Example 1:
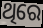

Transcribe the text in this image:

ଥିରେ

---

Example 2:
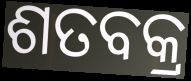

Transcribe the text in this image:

ଶତବକ୍ର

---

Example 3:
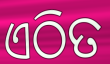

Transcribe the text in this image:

ଏଠିତ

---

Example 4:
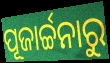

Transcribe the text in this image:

ପୂଜାର୍ଚ୍ଚନାରୁ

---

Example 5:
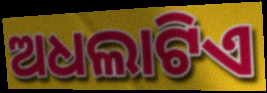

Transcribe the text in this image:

ଅଧଲାଟିଏ